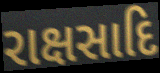
રાક્ષસાદિ